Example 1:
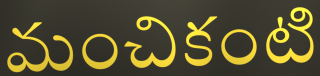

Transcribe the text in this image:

మంచికంటి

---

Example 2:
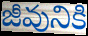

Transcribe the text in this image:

జీవునికి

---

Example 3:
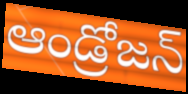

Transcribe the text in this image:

ఆండ్రోజన్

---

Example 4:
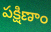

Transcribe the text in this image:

పక్షిణాం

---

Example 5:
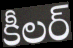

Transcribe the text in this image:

కీలర్